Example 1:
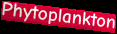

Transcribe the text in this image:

Phytoplankton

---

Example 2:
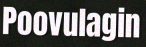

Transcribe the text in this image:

Poovulagin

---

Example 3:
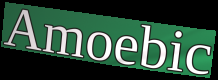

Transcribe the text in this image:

Amoebic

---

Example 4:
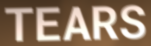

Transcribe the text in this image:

TEARS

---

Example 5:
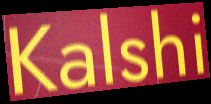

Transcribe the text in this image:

Kalshi